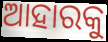
ଆହାରକୁ